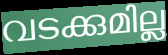
വടക്കുമില്ല